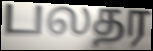
பலதர